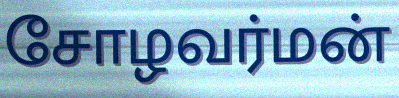
சோழவர்மன்